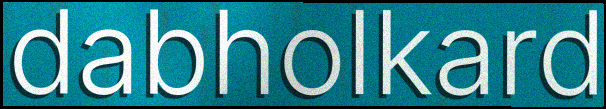
dabholkard